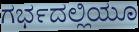
ಗರ್ಭದಲ್ಲಿಯೂ